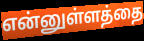
என்னுள்ளத்தை